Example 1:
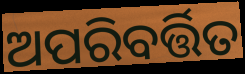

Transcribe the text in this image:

ଅପରିବର୍ତ୍ତିତ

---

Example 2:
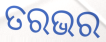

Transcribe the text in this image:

ତରଭର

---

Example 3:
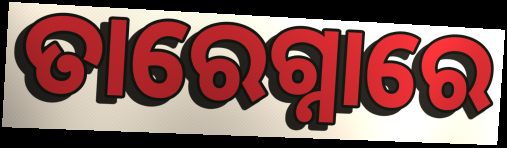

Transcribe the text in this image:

ତାରେଗ୍ନାରେ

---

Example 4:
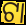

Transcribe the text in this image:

ଟା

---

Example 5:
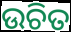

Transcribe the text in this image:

ଉଚିତ